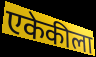
एकेकीला